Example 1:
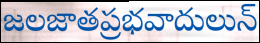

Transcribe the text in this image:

జలజాతప్రభవాదులున్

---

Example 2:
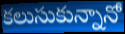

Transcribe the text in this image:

కలుసుకున్నానో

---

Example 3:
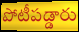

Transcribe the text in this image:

పోటీపడ్డారు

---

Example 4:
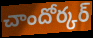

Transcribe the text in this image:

చాందోర్కర్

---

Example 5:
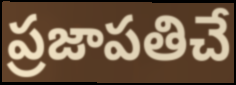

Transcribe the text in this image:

ప్రజాపతిచే